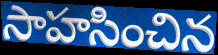
సాహసించిన